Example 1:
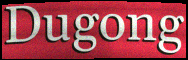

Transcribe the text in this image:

Dugong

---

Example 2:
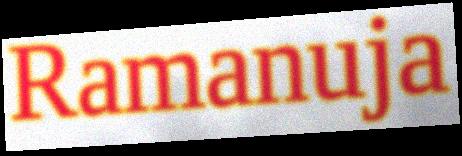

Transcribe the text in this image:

Ramanuja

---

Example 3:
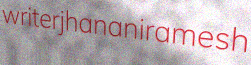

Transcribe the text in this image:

writerjhananiramesh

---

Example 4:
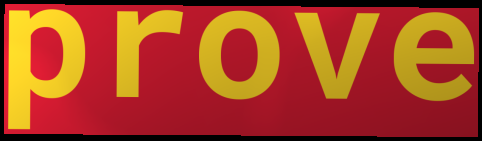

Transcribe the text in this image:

prove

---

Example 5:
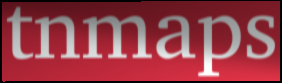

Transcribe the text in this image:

tnmaps